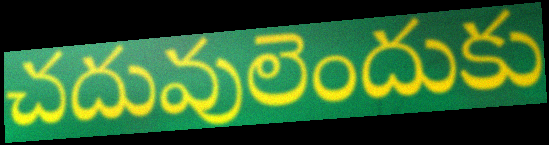
చదువులెందుకు